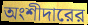
অংশীদারের